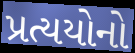
પ્રત્યયોનો